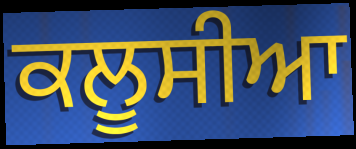
ਕਲੂਸੀਆ